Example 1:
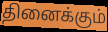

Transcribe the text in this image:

தினைக்கும்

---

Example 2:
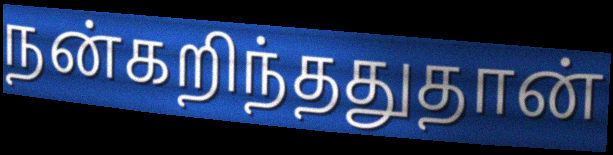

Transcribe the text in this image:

நன்கறிந்ததுதான்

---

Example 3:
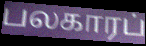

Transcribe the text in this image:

பலகாரப்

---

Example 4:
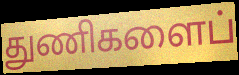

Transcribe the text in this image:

துணிகளைப்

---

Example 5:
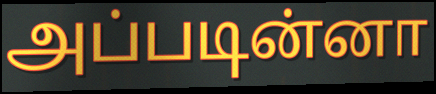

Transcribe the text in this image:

அப்படின்னா